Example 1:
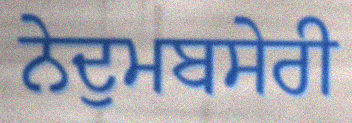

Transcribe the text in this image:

ਨੇਦੁਮਬਸੇਰੀ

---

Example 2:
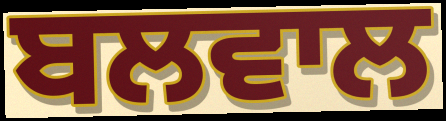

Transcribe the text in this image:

ਬਲਵਾਲ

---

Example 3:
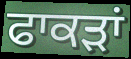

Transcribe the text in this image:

ਫਾਕੜਾਂ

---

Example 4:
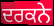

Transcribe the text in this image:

ਦਰਕਨੇ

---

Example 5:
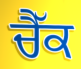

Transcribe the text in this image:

ਚੈੱਕ